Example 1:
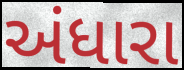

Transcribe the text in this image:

અંધારા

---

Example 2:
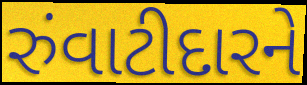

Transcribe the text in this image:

રુંવાટીદારને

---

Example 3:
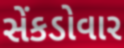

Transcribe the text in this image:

સેંકડોવાર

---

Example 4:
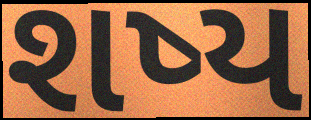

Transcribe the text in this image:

શષ્ય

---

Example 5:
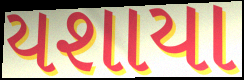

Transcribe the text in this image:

યશાયા